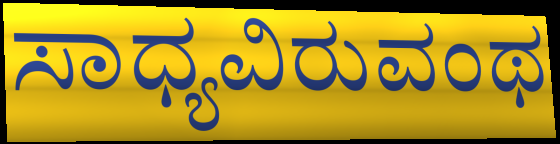
ಸಾಧ್ಯವಿರುವಂಥ